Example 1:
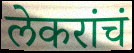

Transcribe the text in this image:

लेकरांचं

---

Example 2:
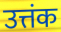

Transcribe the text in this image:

उत्तंक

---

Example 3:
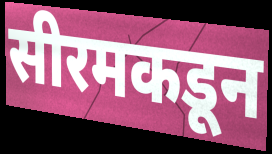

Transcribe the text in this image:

सीरमकडून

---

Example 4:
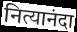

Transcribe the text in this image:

नित्यानंदा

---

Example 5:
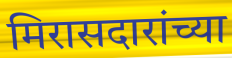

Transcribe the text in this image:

मिरासदारांच्या